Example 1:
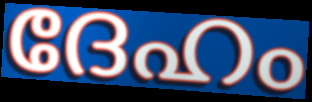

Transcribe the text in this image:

ദേഹം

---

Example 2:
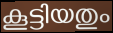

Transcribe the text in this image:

കൂട്ടിയതും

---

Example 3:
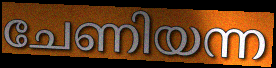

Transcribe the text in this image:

ചേണിയന്ന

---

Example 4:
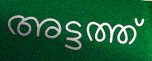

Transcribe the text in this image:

അട്ടത്ത്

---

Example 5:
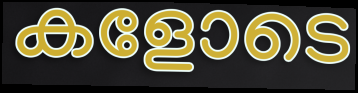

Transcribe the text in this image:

കളോടെ